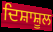
ਦਿਸ਼ਾਸ਼ੂਲ